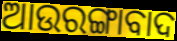
ଆଉରଙ୍ଗାବାଦ